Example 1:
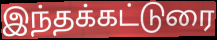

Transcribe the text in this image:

இந்தக்கட்டுரை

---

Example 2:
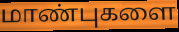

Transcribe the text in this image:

மாண்புகளை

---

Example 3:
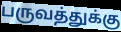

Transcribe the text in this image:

பருவத்துக்கு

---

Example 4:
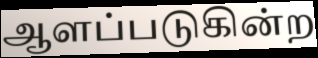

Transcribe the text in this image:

ஆளப்படுகின்ற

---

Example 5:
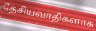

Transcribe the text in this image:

தேசியவாதிகளாக